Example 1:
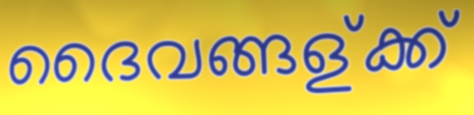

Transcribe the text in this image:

ദൈവങ്ങള്ക്ക്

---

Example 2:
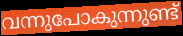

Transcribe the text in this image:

വന്നുപോകുന്നുണ്ട്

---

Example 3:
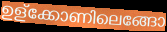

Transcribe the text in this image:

ഉള്ക്കോണിലെങ്ങോ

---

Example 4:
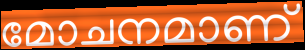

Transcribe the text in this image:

മോചനമാണ്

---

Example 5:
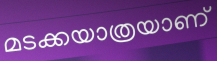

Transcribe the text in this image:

മടക്കയാത്രയാണ്